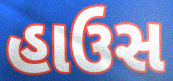
હાઉસ